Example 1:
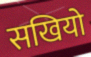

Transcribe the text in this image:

सखियो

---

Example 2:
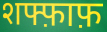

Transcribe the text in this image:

शफ्फ़ाफ़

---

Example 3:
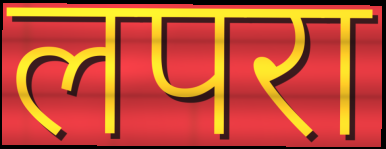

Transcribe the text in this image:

लपरा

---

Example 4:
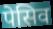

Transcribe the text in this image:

पेसिव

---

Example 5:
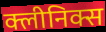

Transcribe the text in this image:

क्लीनिक्स